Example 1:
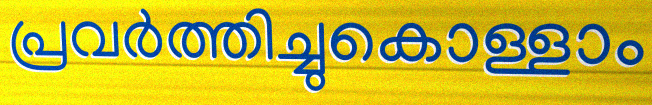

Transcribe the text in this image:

പ്രവർത്തിച്ചുകൊള്ളാം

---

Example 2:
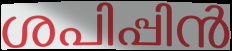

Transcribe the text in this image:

ശപിപ്പിൻ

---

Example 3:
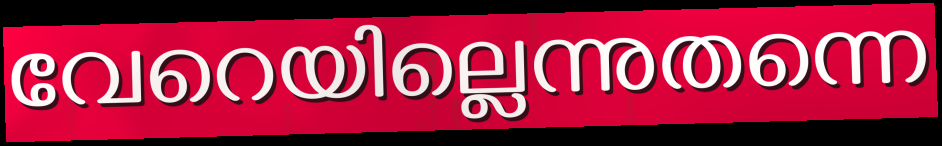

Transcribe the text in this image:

വേറെയില്ലെന്നുതന്നെ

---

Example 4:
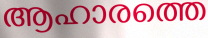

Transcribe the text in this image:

ആഹാരത്തെ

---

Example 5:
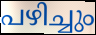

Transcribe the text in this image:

പഴിച്ചും